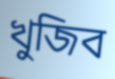
খুজিব